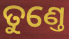
ତୁଣ୍ତେ